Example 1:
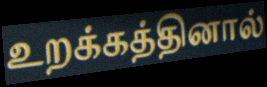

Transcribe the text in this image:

உறக்கத்தினால்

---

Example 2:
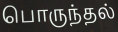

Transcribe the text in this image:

பொருந்தல்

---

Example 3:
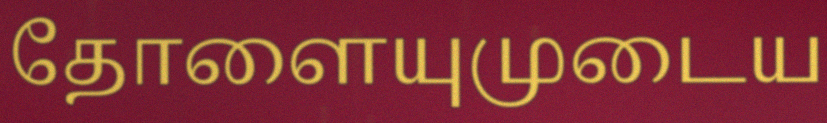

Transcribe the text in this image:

தோளையுமுடைய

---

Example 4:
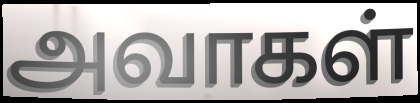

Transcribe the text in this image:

அவாகள்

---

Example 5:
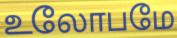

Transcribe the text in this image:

உலோபமே